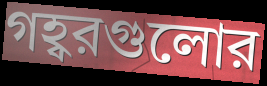
গহ্বরগুলোর